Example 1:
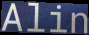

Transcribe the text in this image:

Alin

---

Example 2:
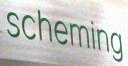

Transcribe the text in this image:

scheming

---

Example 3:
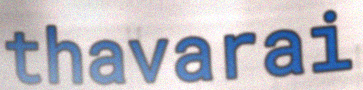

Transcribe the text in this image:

thavarai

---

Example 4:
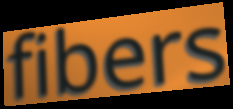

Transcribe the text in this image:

fibers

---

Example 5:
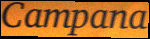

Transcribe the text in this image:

Campana